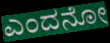
ಎಂದನೋ